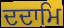
ਦਦਾਮਿ